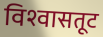
विश्वासतूट